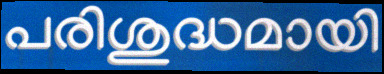
പരിശുദ്ധമായി